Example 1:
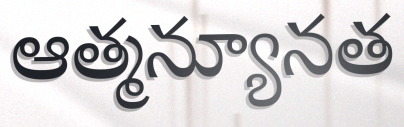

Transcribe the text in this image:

ఆత్మన్యూనత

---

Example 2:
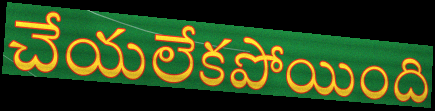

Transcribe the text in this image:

చేయలేకపోయింది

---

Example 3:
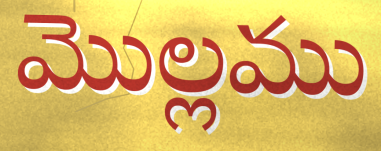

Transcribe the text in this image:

మొల్లము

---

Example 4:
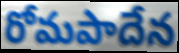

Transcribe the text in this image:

రోమపాదేన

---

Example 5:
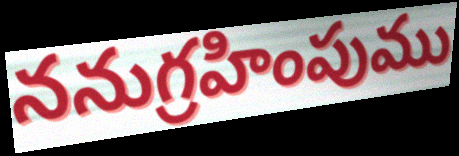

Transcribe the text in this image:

ననుగ్రహింపుము